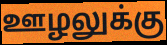
ஊழலுக்கு